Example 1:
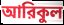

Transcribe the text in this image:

আরিকুল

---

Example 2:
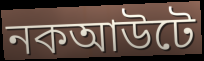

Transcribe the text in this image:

নকআউটে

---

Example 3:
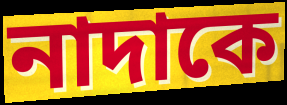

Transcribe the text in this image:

নাদাকে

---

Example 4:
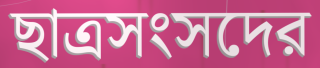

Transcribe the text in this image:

ছাত্রসংসদের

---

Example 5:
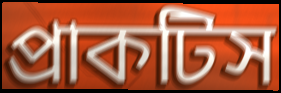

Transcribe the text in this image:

প্রাকটিস